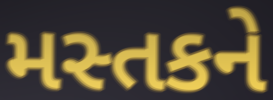
મસ્તકને